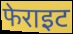
फेराइट